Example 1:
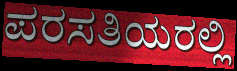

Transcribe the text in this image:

ಪರಸತಿಯರಲ್ಲಿ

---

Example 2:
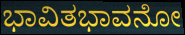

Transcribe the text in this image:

ಭಾವಿತಭಾವನೋ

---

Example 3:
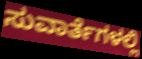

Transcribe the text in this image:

ಸುವಾರ್ತೆಗಳಲ್ಲಿ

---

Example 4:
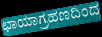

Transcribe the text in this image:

ಛಾಯಾಗ್ರಹಣದಿಂದ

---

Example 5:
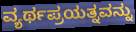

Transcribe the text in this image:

ವ್ಯರ್ಥಪ್ರಯತ್ನವನ್ನು